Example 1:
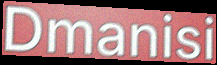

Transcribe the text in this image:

Dmanisi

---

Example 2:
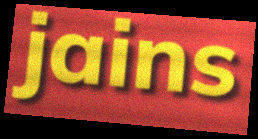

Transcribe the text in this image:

jains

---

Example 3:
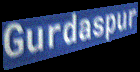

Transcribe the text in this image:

Gurdaspur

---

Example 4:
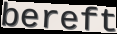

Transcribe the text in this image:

bereft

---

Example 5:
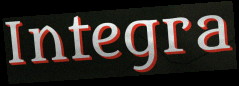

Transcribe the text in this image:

Integra